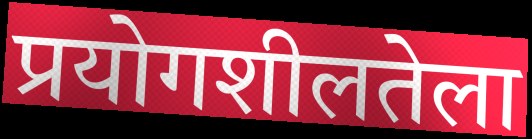
प्रयोगशीलतेला